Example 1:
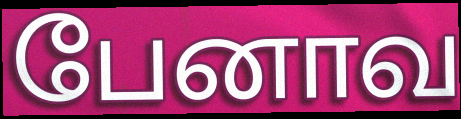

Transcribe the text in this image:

பேனாவ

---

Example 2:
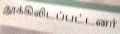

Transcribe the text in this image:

தூக்கிலிடப்பட்டனர்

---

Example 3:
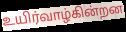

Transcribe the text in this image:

உயிர்வாழ்கின்றன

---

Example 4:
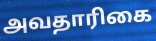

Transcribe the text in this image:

அவதாரிகை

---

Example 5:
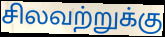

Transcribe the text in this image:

சிலவற்றுக்கு